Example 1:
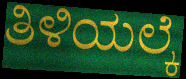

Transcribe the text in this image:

ತಿಳಿಯಲ್ಕೆ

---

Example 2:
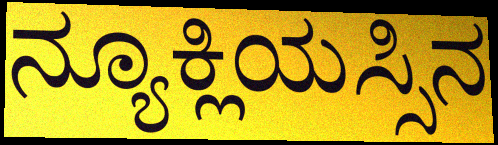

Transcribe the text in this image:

ನ್ಯೂಕ್ಲಿಯಸ್ಸಿನ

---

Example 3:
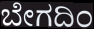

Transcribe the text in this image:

ಬೇಗದಿಂ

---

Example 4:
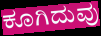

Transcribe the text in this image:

ಕೂಗಿದುವು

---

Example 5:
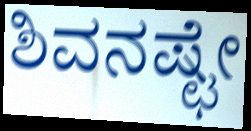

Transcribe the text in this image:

ಶಿವನಷ್ಟೇ